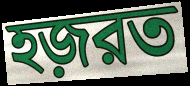
হজ়রত